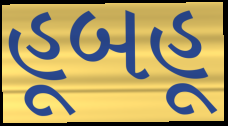
હૂબહૂ